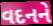
વદનને